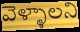
వెళ్ళాలని